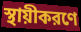
স্থায়ীকরণে